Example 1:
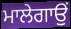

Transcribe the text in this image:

ਮਾਲੇਗਾਉਂ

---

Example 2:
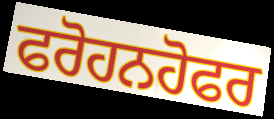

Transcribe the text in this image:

ਫਰੋਹਨਹੋਫਰ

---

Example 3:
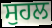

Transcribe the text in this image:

ਸੁਹਲ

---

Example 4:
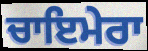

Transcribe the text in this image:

ਚਾਇਮੇਰਾ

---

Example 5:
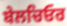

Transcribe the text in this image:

ਬੇਲਚਿਓਰ